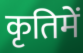
कृतिमें